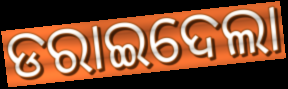
ଡରାଇଦେଲା